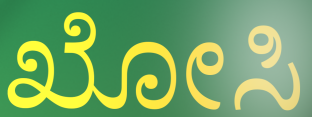
ಖೋಸಿ